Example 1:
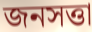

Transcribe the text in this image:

জনসত্তা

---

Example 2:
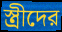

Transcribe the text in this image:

স্ত্রীদের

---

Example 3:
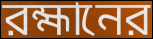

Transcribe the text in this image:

রহ্মানের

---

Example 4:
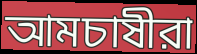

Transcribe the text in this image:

আমচাষীরা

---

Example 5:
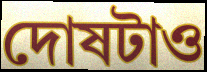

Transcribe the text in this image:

দোষটাও